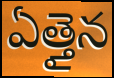
ఏత్తైన